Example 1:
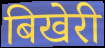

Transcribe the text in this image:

बिखेरी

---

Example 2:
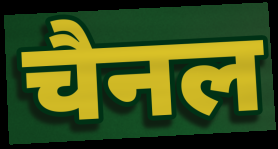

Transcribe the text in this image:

चैनल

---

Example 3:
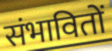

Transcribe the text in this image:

संभावितों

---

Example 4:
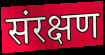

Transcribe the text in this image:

संरक्षण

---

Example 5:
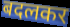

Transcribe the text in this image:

बदलकर